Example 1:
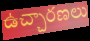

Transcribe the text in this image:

ఉచ్చారణలు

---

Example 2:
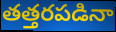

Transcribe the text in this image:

తత్తరపడినా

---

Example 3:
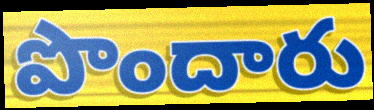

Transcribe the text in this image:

పొందారు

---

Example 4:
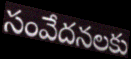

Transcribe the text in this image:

సంవేదనలకు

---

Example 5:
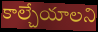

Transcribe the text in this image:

కాల్చేయాలని